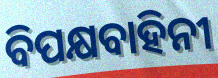
ବିପକ୍ଷବାହିନୀ